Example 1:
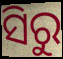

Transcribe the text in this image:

ସିରୁ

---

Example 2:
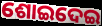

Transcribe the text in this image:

ଶୋଇଦେଇ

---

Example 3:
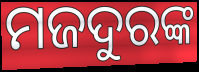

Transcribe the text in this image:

ମଜଦୁରଙ୍କ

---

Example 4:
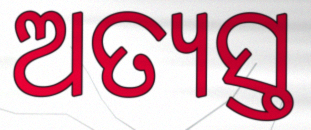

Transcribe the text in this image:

ଅତ୍ୟସ୍ତ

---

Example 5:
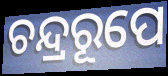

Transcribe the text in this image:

ଚନ୍ଦ୍ରରୂପେ